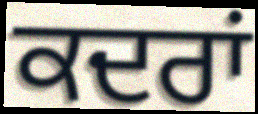
ਕਦਰਾਂ